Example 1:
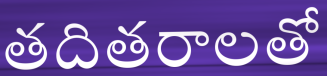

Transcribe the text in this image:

తదితరాలతో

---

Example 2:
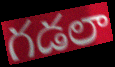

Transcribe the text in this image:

గడలా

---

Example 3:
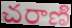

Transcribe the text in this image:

చరాణి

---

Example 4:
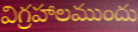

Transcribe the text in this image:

విగ్రహాలముందు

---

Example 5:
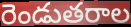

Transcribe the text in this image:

రెండుతరాల